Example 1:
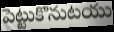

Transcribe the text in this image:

పెట్టుకొనుటయు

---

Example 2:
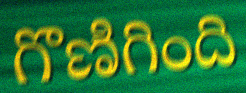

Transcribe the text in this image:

గొణిగింది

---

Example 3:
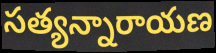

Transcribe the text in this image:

సత్యన్నారాయణ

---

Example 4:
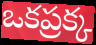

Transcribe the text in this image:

ఒకప్రక్క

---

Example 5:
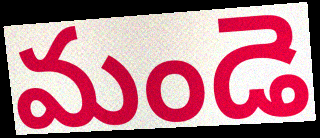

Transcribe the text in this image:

మండె